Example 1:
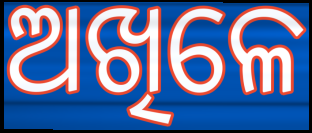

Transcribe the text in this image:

ଅଖିଳେ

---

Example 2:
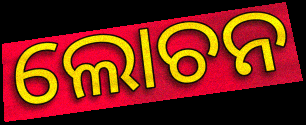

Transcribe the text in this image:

ଲୋଚନ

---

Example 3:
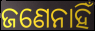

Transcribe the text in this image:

ଜଣେନାହିଁ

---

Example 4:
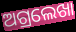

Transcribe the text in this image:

ଅଗ୍ରଲେଖା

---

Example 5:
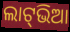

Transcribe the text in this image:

ଲାଟ୍‍ଭିଆ